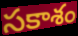
సకాశం